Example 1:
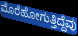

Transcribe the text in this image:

ಮೊರೆಹೋಗುತ್ತಿದ್ದೆವು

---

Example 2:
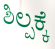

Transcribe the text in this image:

ಶಿಲ್ಪಕ್ಕೆ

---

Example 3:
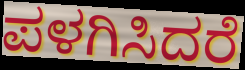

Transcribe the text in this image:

ಪಳಗಿಸಿದರೆ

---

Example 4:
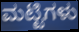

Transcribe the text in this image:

ಮಟ್ಟಿಗಳು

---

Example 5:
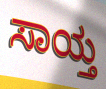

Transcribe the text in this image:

ಸಾಯ್ತ